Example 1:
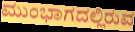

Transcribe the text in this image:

ಮುಂಭಾಗದಲ್ಲಿರುವ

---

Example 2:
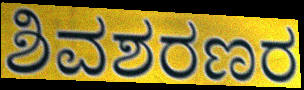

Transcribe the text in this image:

ಶಿವಶರಣರ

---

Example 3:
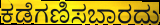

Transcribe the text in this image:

ಕಡೆಗಣಿಸಬಾರದು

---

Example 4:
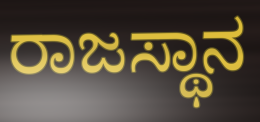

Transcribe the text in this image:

ರಾಜಸ್ಥಾನ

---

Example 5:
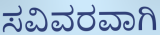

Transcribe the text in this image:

ಸವಿವರವಾಗಿ